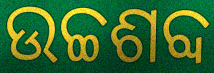
ଉଚ୍ଚଶବ୍ଦ